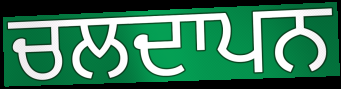
ਚਲਦਾਪਨ